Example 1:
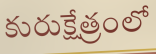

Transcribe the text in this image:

కురుక్షేత్రంలో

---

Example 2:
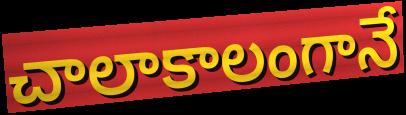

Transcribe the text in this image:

చాలాకాలంగానే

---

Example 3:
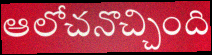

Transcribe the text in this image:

ఆలోచనొచ్చింది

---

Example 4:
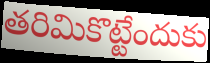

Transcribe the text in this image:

తరిమికొట్టేందుకు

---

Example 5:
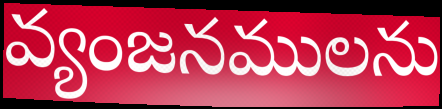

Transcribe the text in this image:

వ్యంజనములను